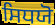
ਸਿਧਯੋ